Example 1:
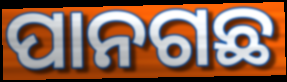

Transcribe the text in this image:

ପାନଗଛ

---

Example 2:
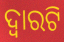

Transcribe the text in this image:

ଦ୍ୱାରଟି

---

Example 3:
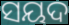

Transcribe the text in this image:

ସୟଦ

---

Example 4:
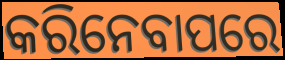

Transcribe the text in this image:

କରିନେବାପରେ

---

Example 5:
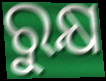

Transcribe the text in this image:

ରୁକ୍ଷ